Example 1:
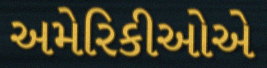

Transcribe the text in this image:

અમેરિકીઓએ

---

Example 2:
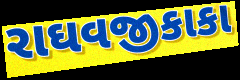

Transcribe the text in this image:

રાઘવજીકાકા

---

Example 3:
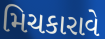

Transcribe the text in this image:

મિચકારાવે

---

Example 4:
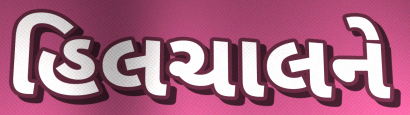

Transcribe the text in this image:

હિલચાલને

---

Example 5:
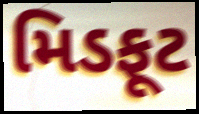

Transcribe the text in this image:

મિડફૂટ